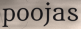
poojas